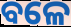
ବଳେ